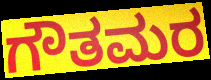
ಗೌತಮರ